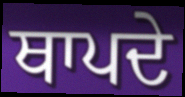
ਥਾਪਦੇ